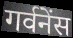
गर्वनेंस